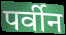
पर्वीन